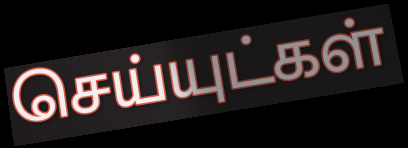
செய்யுட்கள்